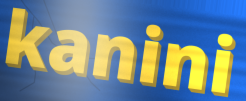
kanini